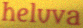
heluva